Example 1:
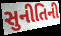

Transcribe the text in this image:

સુનીતિની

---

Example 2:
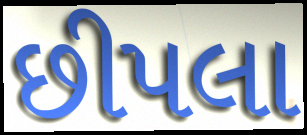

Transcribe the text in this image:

છીપલા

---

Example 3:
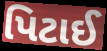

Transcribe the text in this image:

પિટાઈ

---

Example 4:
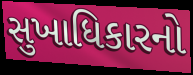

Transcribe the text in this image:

સુખાધિકારનો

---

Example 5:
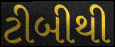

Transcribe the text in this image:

ટીબીથી